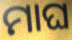
ମାଘ